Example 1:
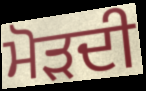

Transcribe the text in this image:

ਮੋੜਦੀ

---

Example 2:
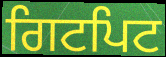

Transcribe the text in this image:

ਗਿਟਪਿਟ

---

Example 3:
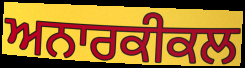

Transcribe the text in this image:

ਅਨਾਰਕੀਕਲ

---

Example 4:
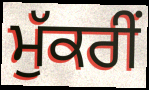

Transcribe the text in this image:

ਮੁੱਕਰੀਂ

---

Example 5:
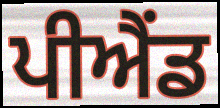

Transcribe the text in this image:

ਪੀਐਂਡ